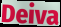
Deiva